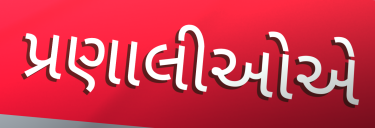
પ્રણાલીઓએ